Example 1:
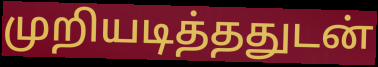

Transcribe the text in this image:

முறியடித்ததுடன்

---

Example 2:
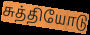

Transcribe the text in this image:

சுத்தியோடு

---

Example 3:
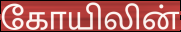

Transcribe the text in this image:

கோயிலின்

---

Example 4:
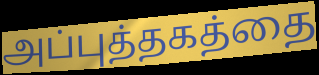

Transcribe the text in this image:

அப்புத்தகத்தை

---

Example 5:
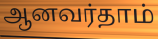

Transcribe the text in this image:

ஆனவர்தாம்